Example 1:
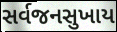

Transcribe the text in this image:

સર્વજનસુખાય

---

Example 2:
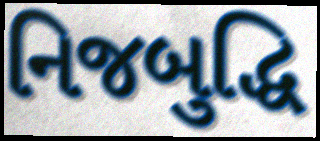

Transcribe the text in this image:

નિજબુદ્ધિ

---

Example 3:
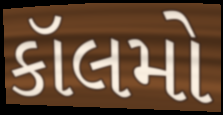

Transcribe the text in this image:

કૉલમો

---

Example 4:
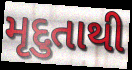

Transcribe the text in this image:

મૃદુતાથી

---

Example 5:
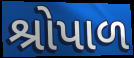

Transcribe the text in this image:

શ્રોપાળ